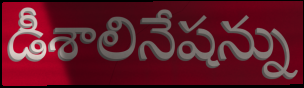
డీశాలినేషన్ను